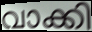
വാക്കി